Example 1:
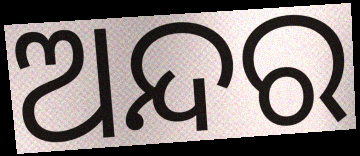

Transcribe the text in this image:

ଅନ୍ଦର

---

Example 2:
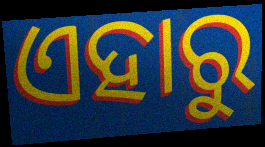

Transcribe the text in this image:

ଏହାରୁ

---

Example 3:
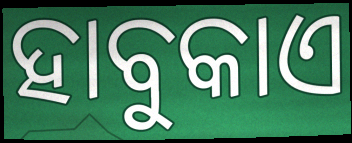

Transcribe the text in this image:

ହାବୁକାଏ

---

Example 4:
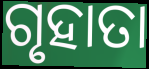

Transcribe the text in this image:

ଗୃହାତା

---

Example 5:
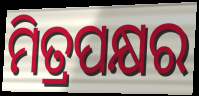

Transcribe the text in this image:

ମିତ୍ରପକ୍ଷର